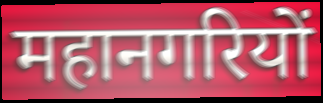
महानगरियों